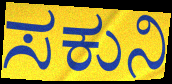
ಸಕುನಿ